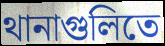
থানাগুলিতে